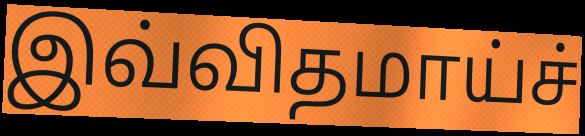
இவ்விதமாய்ச்